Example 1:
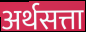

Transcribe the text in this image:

अर्थसत्ता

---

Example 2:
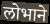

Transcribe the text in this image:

लोभाने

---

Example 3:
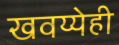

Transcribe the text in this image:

खवय्येही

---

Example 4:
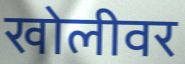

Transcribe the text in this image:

खोलीवर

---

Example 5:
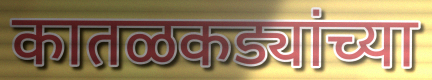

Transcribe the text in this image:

कातळकड्यांच्या